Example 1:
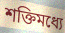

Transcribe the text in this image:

শক্তিমধ্যে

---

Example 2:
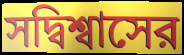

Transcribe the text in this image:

সদ্বিশ্বাসের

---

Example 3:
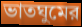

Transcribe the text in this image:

ভাতঘুমের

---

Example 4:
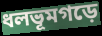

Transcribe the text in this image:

ধলভূমগড়ে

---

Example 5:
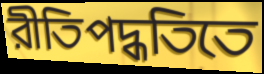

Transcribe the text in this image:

রীতিপদ্ধতিতে